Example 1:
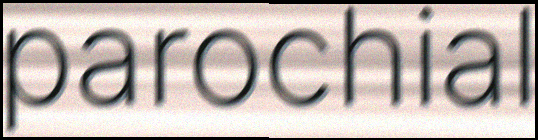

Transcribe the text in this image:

parochial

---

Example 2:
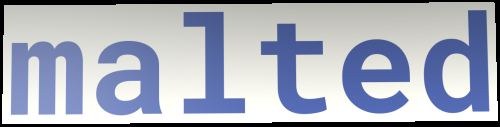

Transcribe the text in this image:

malted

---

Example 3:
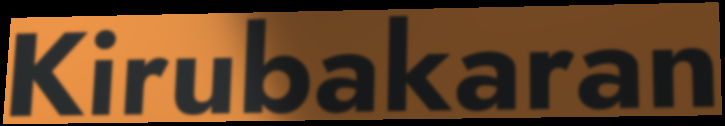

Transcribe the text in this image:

Kirubakaran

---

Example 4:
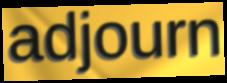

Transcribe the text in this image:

adjourn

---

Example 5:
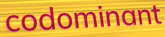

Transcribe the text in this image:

codominant